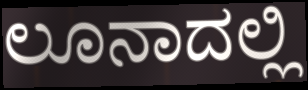
ಲೂನಾದಲ್ಲಿ